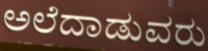
ಅಲೆದಾಡುವರು